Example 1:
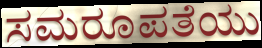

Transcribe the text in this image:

ಸಮರೂಪತೆಯು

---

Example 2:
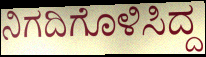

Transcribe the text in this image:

ನಿಗದಿಗೊಳಿಸಿದ್ದ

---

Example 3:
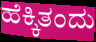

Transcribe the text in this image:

ಹೆಕ್ಕಿತಂದು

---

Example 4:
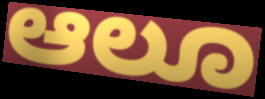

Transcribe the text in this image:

ಆಲೂ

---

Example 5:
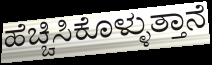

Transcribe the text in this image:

ಹೆಚ್ಚಿಸಿಕೊಳ್ಳುತ್ತಾನೆ